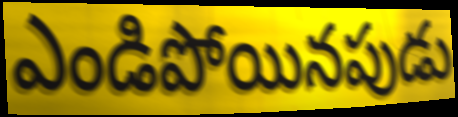
ఎండిపోయినపుడు